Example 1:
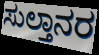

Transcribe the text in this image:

ಸುಲ್ತಾನರ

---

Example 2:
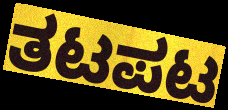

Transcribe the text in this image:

ತಟಪಟ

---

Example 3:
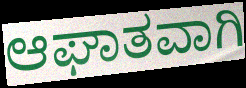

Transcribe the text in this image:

ಆಘಾತವಾಗಿ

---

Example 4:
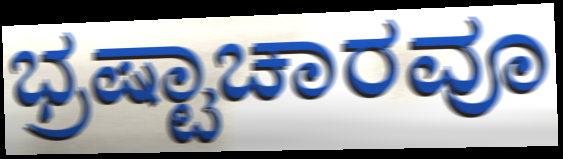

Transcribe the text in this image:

ಭ್ರಷ್ಟಾಚಾರವೂ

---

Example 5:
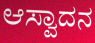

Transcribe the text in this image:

ಆಸ್ವಾದನ